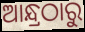
ଆନ୍ଧ୍ରଠାରୁ